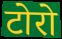
टोरो